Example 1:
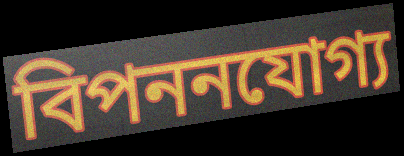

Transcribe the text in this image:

বিপননযোগ্য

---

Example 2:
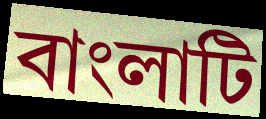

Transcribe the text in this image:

বাংলাটি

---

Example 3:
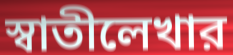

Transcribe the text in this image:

স্বাতীলেখার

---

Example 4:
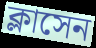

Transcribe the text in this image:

ক্লাসেন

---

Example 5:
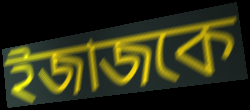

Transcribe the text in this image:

ইজাজকে